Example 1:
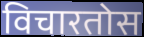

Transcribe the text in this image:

विचारतोस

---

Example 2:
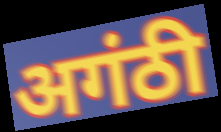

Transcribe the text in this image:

अगंठी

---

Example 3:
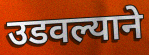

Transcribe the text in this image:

उडवल्याने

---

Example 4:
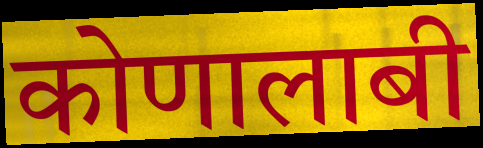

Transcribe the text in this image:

कोणालाबी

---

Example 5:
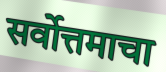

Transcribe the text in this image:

सर्वोत्तमाचा